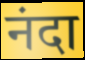
नंदा